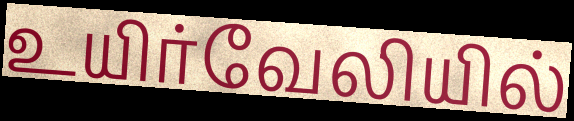
உயிர்வேலியில்